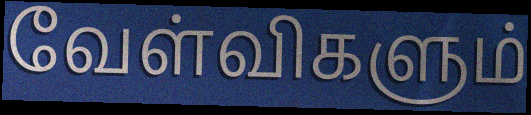
வேள்விகளும்